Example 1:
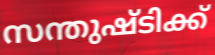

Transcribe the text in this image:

സന്തുഷ്ടിക്ക്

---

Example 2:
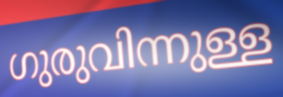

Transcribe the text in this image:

ഗുരുവിന്നുള്ള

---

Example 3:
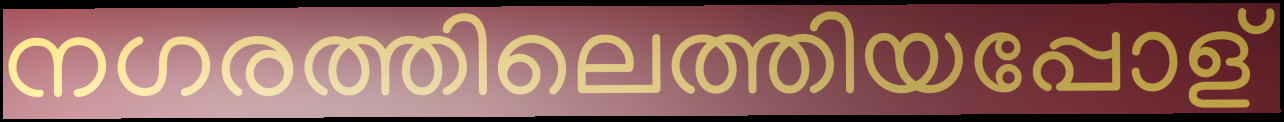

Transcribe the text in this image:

നഗരത്തിലെത്തിയപ്പോള്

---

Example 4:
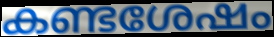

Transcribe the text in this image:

കണ്ടശേഷം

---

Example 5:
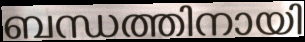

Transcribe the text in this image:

ബന്ധത്തിനായി